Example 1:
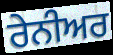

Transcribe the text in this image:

ਰੇਨੀਅਰ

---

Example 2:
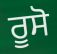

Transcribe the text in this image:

ਰੂਸੋ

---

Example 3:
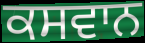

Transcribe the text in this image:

ਕਸਵਾਨ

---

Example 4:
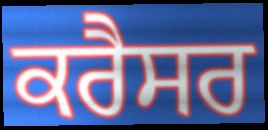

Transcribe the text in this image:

ਕਰੈਸਰ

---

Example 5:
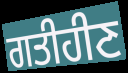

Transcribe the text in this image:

ਗਤੀਹੀਣ